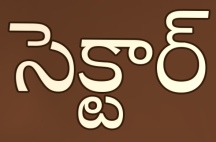
సెక్టార్